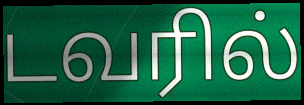
டவரில்